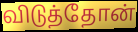
விடுத்தோன்